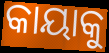
କାୟାକୁ